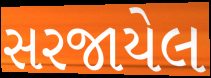
સરજાયેલ